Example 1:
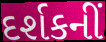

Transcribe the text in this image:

દર્શકનીં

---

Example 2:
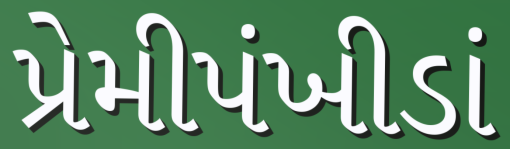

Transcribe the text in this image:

પ્રેમીપંખીડાં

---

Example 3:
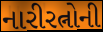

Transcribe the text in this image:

નારીરત્નોની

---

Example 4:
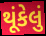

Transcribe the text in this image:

થૂંકેલું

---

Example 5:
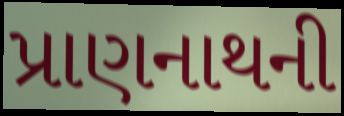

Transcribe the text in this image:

પ્રાણનાથની